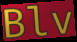
Blv